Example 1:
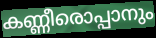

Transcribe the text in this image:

കണ്ണീരൊപ്പാനും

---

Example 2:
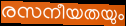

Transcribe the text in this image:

രസനീയതയും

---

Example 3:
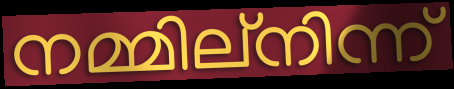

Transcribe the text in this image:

നമ്മില്നിന്ന്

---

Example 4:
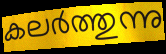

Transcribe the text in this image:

കലർത്തുന്നു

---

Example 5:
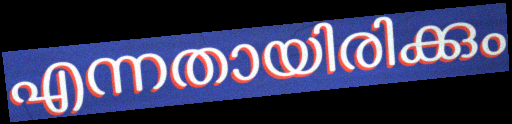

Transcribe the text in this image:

എന്നതായിരിക്കും